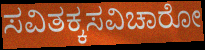
ಸವಿತಕ್ಕಸವಿಚಾರೋ